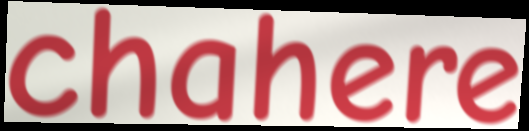
chahere